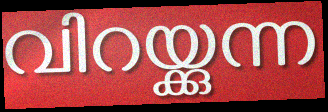
വിറയ്ക്കുന്ന